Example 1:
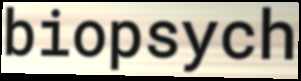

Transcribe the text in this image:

biopsych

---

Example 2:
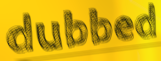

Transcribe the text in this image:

dubbed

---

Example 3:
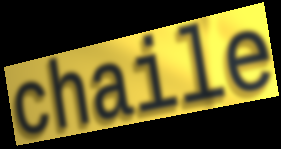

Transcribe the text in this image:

chaile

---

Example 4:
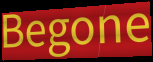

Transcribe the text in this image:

Begone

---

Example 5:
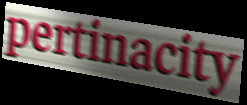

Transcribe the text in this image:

pertinacity